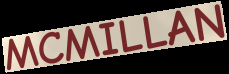
MCMILLAN